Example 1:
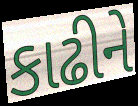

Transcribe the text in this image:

કાઢીને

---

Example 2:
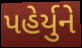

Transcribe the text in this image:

પહેર્યુને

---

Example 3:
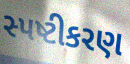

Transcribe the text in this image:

સ્પષ્ટીકરણ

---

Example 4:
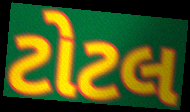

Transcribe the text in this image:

ટોટલ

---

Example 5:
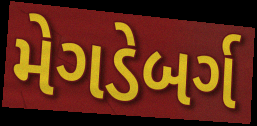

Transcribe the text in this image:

મેગડેબર્ગ